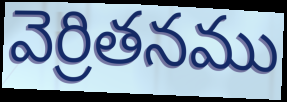
వెర్రితనము